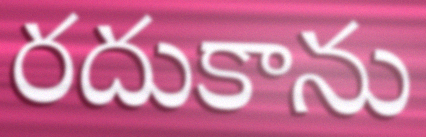
రదుకాను